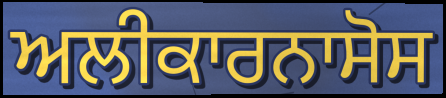
ਅਲੀਕਾਰਨਾਸੋਸ